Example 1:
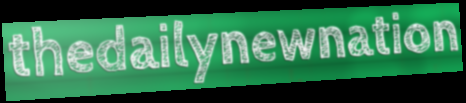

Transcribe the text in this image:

thedailynewnation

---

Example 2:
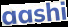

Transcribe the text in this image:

aashi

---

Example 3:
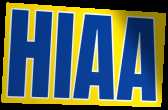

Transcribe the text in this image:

HIAA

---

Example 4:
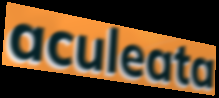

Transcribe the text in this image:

aculeata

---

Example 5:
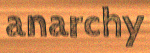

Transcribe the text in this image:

anarchy